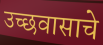
उच्छवासाचे